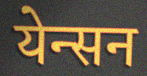
येन्सन